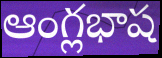
ఆంగ్లభాష